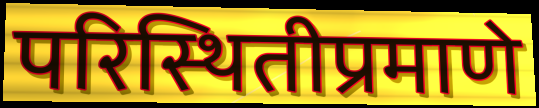
परिस्थितीप्रमाणे